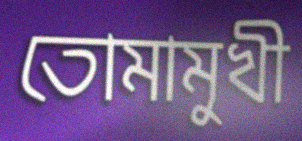
তোমামুখী